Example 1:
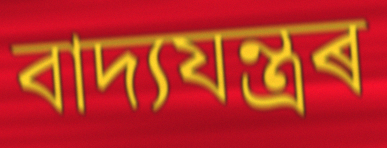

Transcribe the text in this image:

বাদ্যযন্ত্ৰৰ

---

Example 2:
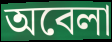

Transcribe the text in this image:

অবেলা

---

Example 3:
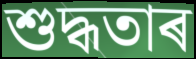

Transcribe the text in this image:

শুদ্ধতাৰ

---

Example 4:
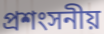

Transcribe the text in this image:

প্ৰশংসনীয়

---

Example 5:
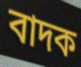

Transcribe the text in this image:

বাদক